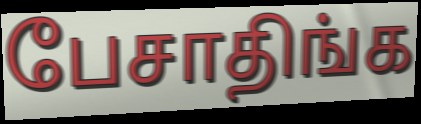
பேசாதிங்க